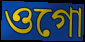
ওগো